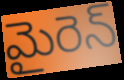
మైరెన్